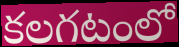
కలగటంలో